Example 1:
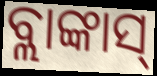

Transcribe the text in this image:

ବ୍ଲାଙ୍କାସ୍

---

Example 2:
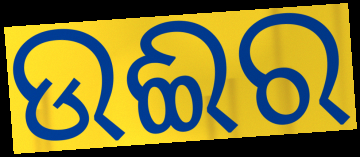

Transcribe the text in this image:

ଉଈର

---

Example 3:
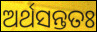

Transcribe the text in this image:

ଅର୍ଥସନ୍ତତଃ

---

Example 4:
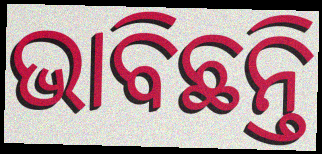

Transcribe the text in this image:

ଭାବିଛନ୍ତି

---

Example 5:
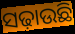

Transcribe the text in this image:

ସଢ଼ାଉଛି